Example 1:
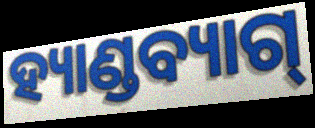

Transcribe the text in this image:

ହ୍ୟାଣ୍ଡବ୍ୟାଗ୍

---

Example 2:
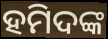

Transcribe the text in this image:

ହମିଦଙ୍କ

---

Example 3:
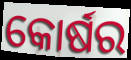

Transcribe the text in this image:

କୋର୍ଷର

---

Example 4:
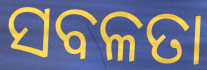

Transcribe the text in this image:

ସବଳତା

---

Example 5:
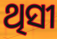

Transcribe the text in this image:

ଥିସୀ